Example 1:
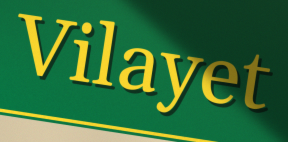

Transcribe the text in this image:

Vilayet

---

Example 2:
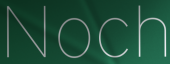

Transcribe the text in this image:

Noch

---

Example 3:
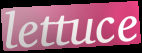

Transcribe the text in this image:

lettuce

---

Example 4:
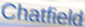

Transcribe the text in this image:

Chatfield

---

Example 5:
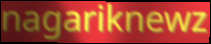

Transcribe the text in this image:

nagariknewz